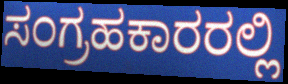
ಸಂಗ್ರಹಕಾರರಲ್ಲಿ